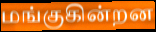
மங்குகின்றன